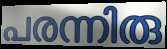
പരന്നിരു